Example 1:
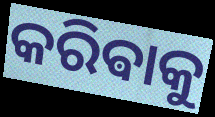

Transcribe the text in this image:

କରିଵାକୁ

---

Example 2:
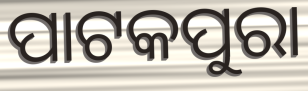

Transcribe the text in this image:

ପାଟକପୁରା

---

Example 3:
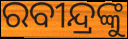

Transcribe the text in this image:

ରବୀନ୍ଦ୍ରଙ୍କୁ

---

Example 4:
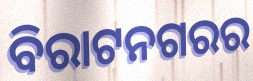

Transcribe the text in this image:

ବିରାଟନଗରର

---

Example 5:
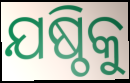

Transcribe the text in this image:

ଯଷ୍ଠିକୁ